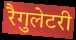
रैगुलेटरी